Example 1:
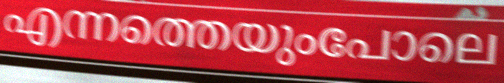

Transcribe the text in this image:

എന്നത്തെയുംപോലെ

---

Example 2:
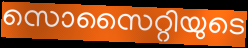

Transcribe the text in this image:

സൊസൈറ്റിയുടെ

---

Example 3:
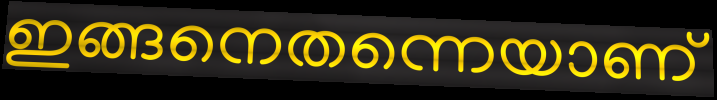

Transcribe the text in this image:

ഇങ്ങനെതന്നെയാണ്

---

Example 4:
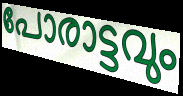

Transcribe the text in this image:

പോരാട്ടവും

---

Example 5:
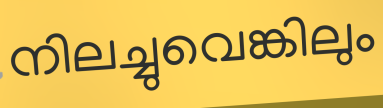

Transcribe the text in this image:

നിലച്ചുവെങ്കിലും